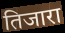
तिजारा